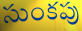
సుంకపు